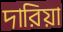
দারিয়া